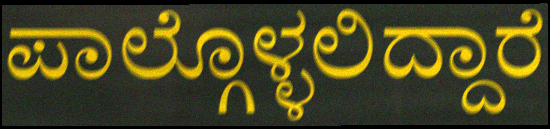
ಪಾಲ್ಗೊಳ್ಳಲಿದ್ದಾರೆ